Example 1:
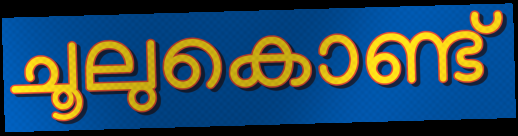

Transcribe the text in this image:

ചൂലുകൊണ്ട്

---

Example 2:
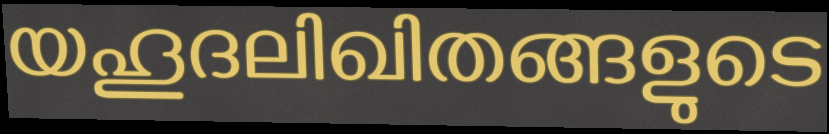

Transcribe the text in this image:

യഹൂദലിഖിതങ്ങളുടെ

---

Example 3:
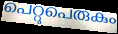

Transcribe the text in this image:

പെറ്റുപെരുകും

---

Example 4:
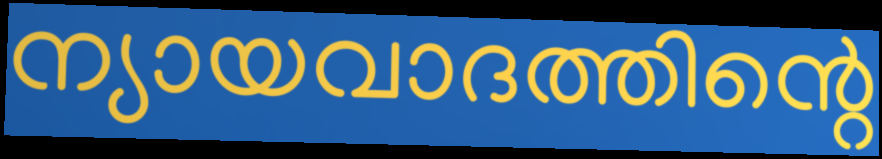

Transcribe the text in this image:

ന്യായവാദത്തിന്റെ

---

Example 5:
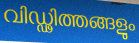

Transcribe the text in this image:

വിഡ്ഢിത്തങ്ങളും